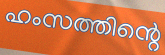
ഹംസത്തിന്റെ